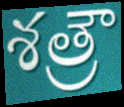
శత్రౌ